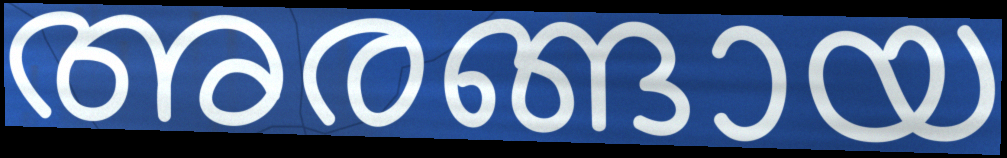
അരങ്ങായ